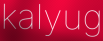
kalyug